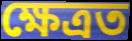
ক্ষেত্ৰত